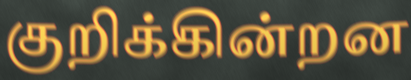
குறிக்கின்றன